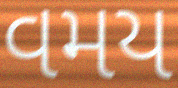
વમય